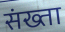
संख्ता